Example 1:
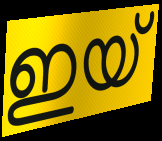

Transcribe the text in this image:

ഇയ്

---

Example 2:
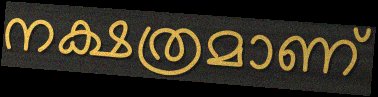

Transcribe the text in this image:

നക്ഷത്രമാണ്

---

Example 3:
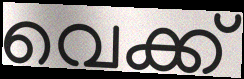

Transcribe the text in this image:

വെക്ക്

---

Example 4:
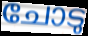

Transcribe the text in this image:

ചോടു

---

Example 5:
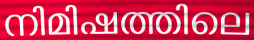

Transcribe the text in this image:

നിമിഷത്തിലെ